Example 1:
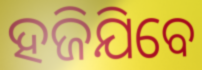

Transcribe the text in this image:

ହଜିଯିବେ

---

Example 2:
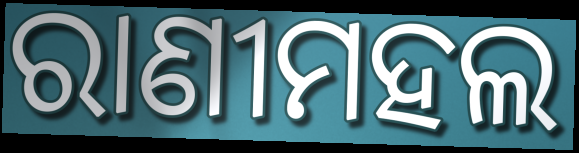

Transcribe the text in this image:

ରାଣୀମହଲ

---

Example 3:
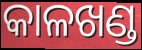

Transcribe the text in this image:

କାଳଖଣ୍ଡ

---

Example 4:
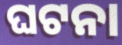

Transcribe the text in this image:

ଘଟନା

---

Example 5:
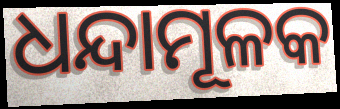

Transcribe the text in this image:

ଧନ୍ଦାମୂଳକ